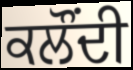
ਕਲੌਂਦੀ